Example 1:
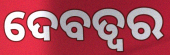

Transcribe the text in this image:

ଦେବତ୍ଵର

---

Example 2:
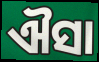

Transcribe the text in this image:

ଐସା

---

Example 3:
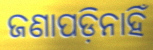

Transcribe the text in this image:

ଜଣାପଡ଼ିନାହିଁ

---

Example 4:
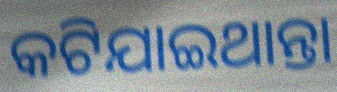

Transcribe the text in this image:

କଟିଯାଇଥାନ୍ତା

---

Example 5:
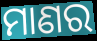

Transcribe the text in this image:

ମାଣର